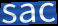
sac